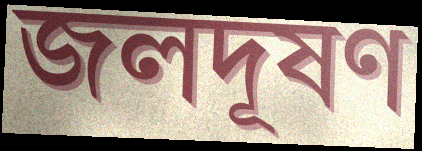
জলদূষণ